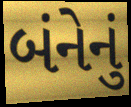
બંનેનું